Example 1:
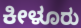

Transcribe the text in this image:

ಕೀಳೂರು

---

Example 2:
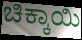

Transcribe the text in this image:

ಚಿಕ್ಕಾಯಿ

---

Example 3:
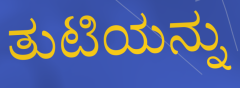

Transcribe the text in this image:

ತುಟಿಯನ್ನು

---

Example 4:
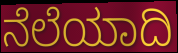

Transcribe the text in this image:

ನೆಲೆಯಾದಿ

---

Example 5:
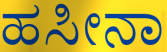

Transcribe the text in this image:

ಹಸೀನಾ